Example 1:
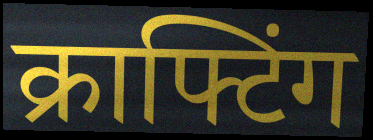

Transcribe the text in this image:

क्राफ्टिंग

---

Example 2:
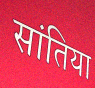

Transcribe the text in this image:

सांतिया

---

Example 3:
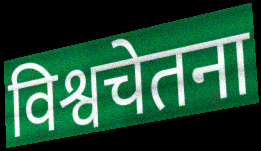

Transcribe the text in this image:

विश्वचेतना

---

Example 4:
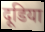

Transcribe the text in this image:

दूडिया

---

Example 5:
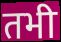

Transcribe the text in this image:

तभी